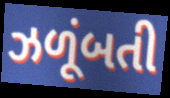
ઝળૂંબતી